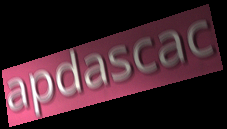
apdascac